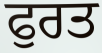
ਫੁਰਤ